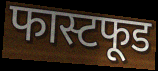
फास्टफूड